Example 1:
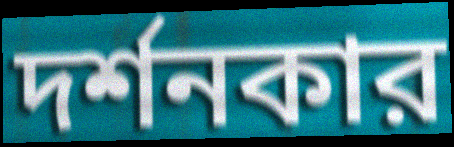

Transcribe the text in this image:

দর্শনকার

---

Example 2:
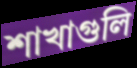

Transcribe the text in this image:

শাখাগুলি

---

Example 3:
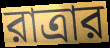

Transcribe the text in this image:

রাত্রার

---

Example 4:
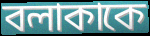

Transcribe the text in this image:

বলাকাকে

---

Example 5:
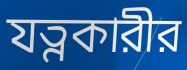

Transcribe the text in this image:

যত্নকারীর